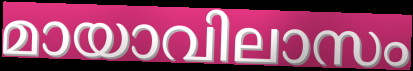
മായാവിലാസം